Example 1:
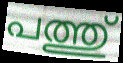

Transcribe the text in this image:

പത്തു്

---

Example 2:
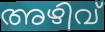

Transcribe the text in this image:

അഴിവ്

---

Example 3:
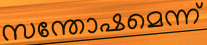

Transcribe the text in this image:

സന്തോഷമെന്ന്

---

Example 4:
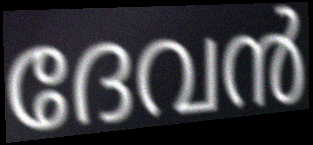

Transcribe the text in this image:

ദേവൻ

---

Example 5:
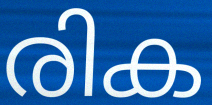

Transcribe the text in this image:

രിക